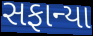
સફાન્યા